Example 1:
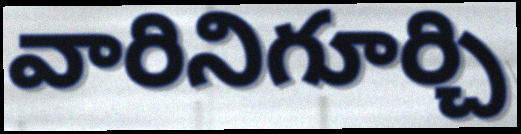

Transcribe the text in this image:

వారినిగూర్చి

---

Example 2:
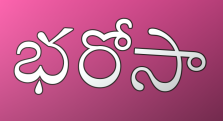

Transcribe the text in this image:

భరోసా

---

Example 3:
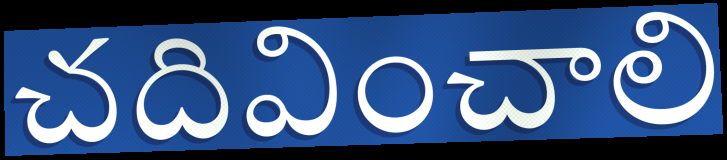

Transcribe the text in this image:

చదివించాలి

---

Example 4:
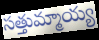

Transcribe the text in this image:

సత్తుమ్మాయ్య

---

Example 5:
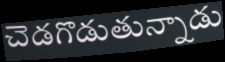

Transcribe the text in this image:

చెడగొడుతున్నాడు